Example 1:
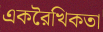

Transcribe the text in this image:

একরৈখিকতা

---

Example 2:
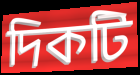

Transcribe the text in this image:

দিকটি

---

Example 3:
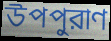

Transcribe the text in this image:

উপপুরাণ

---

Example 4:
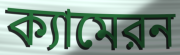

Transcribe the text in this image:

ক্যামেরন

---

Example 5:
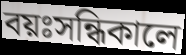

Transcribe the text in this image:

বয়ঃসন্ধিকালে